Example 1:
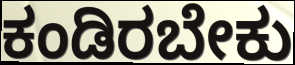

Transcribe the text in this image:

ಕಂಡಿರಬೇಕು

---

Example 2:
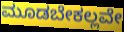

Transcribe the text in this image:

ಮೂಡಬೇಕಲ್ಲವೇ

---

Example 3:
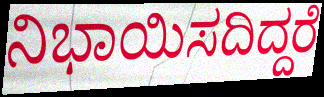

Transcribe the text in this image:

ನಿಭಾಯಿಸದಿದ್ದರೆ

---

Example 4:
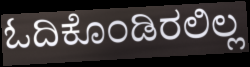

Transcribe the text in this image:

ಓದಿಕೊಂಡಿರಲಿಲ್ಲ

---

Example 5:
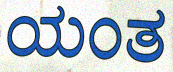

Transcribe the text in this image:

ಯಂತ